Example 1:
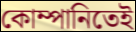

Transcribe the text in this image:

কোম্পানিতেই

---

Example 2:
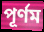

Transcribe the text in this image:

পূর্ণম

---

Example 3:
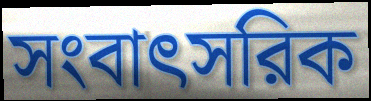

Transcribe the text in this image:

সংবাৎসরিক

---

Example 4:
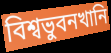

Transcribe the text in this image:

বিশ্বভুবনখানি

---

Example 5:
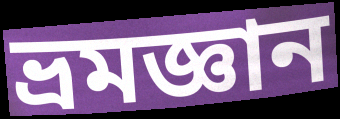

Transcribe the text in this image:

ভ্রমজ্ঞান